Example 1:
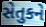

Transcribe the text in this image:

સેતુકને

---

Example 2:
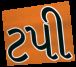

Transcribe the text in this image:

ટપી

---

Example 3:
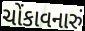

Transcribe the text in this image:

ચોંકાવનારું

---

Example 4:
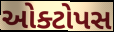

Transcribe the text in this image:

ઓક્ટોપસ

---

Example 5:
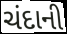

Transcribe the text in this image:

ચંદાની